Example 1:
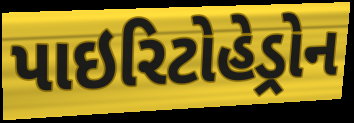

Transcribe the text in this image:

પાઇરિટોહેડ્રોન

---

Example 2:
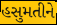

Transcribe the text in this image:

હસુમતીને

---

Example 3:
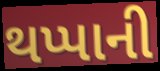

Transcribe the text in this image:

થપ્પાની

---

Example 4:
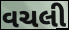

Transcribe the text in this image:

વચલી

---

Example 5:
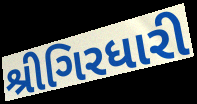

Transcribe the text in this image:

શ્રીગિરધારી